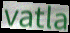
vatla